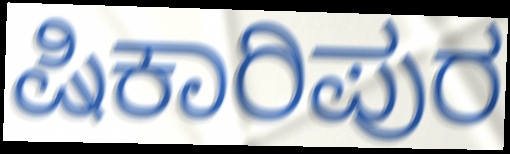
ಷಿಕಾರಿಪುರ